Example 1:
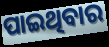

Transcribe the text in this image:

ପାଇଥିବାର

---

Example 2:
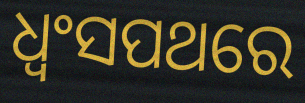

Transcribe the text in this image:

ଧ୍ବଂସପଥରେ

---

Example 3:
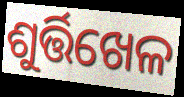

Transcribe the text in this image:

ଶୁର୍ତ୍ତିଖେଳ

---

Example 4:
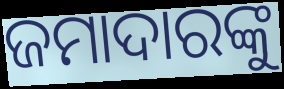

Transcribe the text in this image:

ଜମାଦାରଙ୍କୁ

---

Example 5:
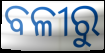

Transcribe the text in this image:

ବଳୀରୁ